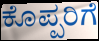
ಕೊಪ್ಪರಿಗೆ